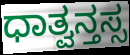
ಧಾತ್ವನ್ತಸ್ಸ